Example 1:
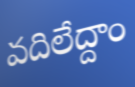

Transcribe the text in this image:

వదిలేద్దాం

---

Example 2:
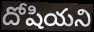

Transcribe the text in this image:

దోషియని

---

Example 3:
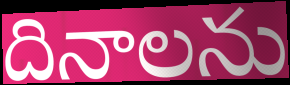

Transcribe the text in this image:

దినాలను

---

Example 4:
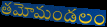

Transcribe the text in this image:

తమోమండలం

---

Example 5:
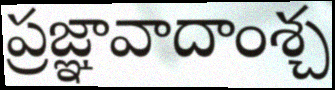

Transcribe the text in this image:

ప్రజ్ఞావాదాంశ్చ